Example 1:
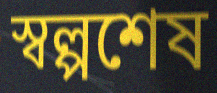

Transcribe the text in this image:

স্বল্পশেষ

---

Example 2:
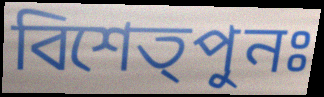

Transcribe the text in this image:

বিশেত্পুনঃ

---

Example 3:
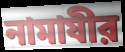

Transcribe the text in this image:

নামাযীর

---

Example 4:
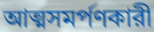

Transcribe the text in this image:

আত্মসমর্পণকারী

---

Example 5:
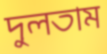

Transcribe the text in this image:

দুলতাম